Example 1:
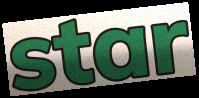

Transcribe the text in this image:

star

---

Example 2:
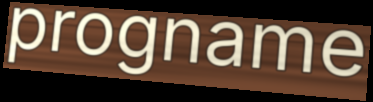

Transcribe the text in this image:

progname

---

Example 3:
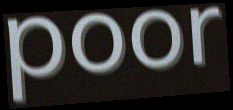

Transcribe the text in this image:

poor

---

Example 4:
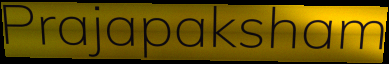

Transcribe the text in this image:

Prajapaksham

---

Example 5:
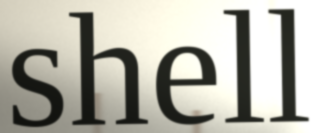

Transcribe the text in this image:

shell